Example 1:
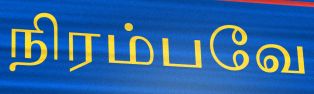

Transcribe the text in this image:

நிரம்பவே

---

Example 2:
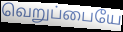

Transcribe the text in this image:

வெறுப்பையே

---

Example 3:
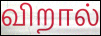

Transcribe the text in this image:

விறால்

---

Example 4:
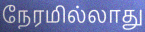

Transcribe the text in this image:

நேரமில்லாது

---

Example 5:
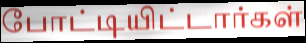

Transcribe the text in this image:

போட்டியிட்டார்கள்